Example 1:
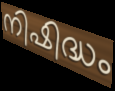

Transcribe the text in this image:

നിഷിദ്ധം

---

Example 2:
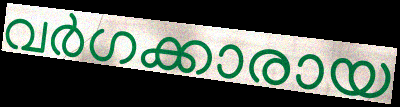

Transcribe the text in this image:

വർഗക്കാരായ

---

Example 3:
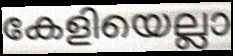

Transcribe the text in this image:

കേളിയെല്ലാ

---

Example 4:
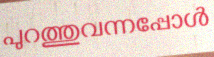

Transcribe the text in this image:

പുറത്തുവന്നപ്പോൾ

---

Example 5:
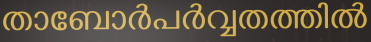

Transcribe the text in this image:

താബോർപർവ്വതത്തിൽ